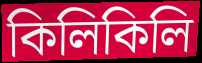
কিলিকিলি